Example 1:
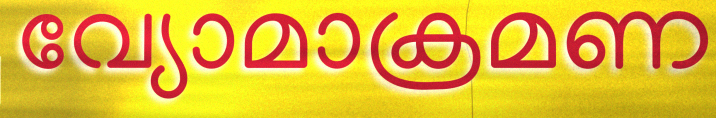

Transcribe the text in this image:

വ്യോമാക്രമണ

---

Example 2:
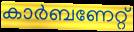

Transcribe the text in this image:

കാർബണേറ്റ്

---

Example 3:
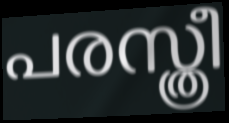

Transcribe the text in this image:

പരസ്ത്രീ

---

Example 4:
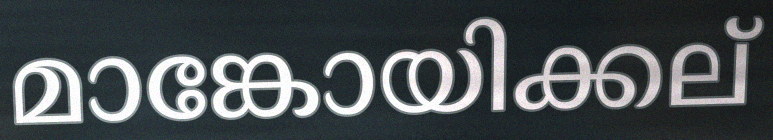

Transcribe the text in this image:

മാങ്കോയിക്കല്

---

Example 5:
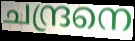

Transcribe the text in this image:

ചന്ദ്രനെ